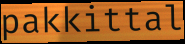
pakkittal